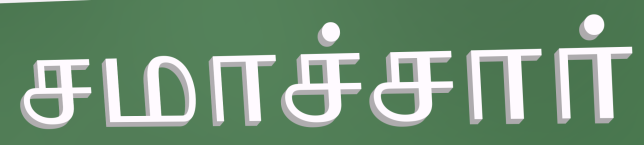
சமாச்சார்